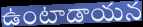
ఉంటాడాయన